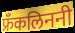
फ्रँकलिननी